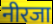
नीरजा